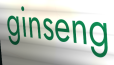
ginseng